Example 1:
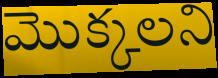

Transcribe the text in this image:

మొక్కలని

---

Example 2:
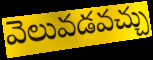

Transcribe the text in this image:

వెలువడవచ్చు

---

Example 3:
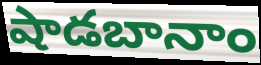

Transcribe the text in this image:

షాడబానాం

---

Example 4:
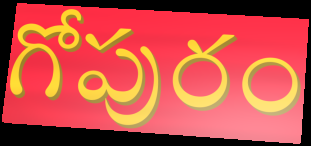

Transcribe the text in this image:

గోపురం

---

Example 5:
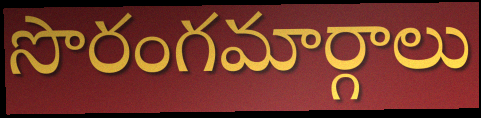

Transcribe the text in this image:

సొరంగమార్గాలు